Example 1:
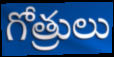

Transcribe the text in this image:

గోత్రులు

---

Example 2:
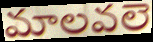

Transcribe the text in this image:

మాలవలె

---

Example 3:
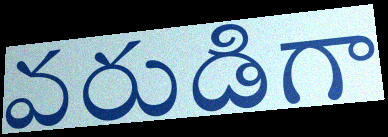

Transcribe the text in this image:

వరుడిగా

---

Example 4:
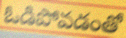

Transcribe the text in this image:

ఓడిపోవడంతో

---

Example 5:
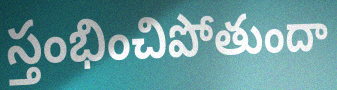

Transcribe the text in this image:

స్తంభించిపోతుందా